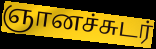
ஞானச்சுடர்